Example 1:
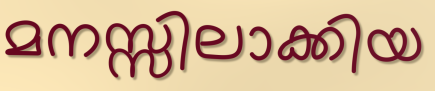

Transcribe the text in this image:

മനസ്സിലാക്കിയ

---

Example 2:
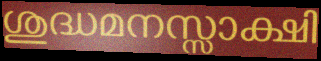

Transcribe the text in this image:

ശുദ്ധമനസ്സാക്ഷി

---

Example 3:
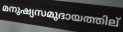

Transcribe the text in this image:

മനുഷ്യസമുദായത്തില്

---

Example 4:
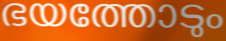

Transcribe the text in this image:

ഭയത്തോടും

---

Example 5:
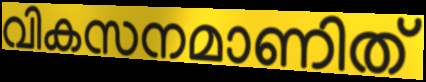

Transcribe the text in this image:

വികസനമാണിത്